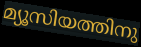
മ്യൂസിയത്തിനു